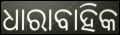
ଧାରାବାହିକ